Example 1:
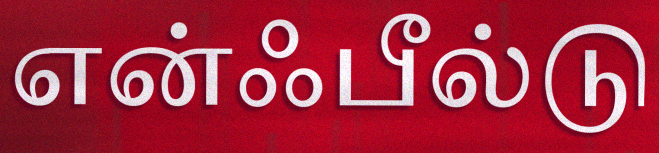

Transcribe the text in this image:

என்ஃபீல்டு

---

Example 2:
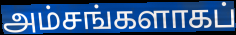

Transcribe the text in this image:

அம்சங்களாகப்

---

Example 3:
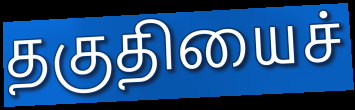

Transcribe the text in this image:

தகுதியைச்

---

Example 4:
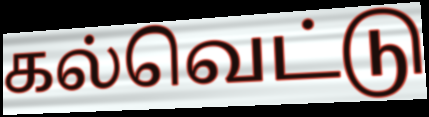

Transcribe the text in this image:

கல்வெட்டு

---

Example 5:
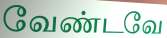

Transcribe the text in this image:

வேண்டவே